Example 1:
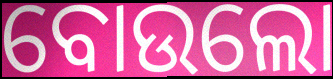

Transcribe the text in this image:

ବୋଉଲୋ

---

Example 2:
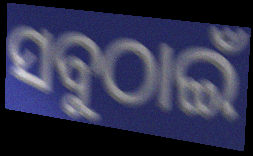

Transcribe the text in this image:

ସବୁଠାଇଁ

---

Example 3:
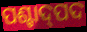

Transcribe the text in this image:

ପଶ୍ଚାଦ୍‍ପଦ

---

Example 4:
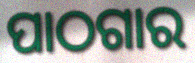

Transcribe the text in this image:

ପାଠଗାର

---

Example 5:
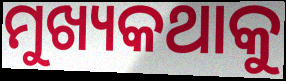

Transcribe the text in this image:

ମୁଖ୍ୟକଥାକୁ